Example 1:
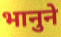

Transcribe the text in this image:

भानुने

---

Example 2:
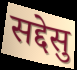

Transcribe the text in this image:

सद्देसु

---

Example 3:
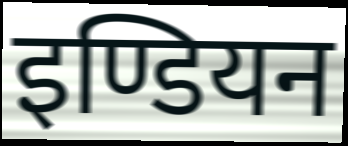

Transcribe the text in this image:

इण्डियन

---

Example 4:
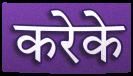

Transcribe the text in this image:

करेके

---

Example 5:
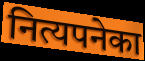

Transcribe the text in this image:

नित्यपनेका